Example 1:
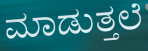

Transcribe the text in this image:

ಮಾಡುತ್ತಲೆ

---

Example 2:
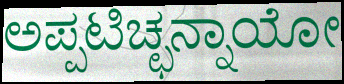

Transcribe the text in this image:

ಅಪ್ಪಟಿಚ್ಛನ್ನಾಯೋ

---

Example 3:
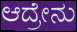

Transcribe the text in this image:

ಆದ್ರೇನು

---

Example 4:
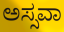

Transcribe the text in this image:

ಅಸ್ಸವಾ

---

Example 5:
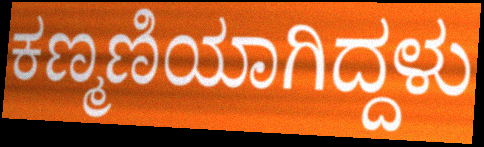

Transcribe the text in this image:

ಕಣ್ಮಣಿಯಾಗಿದ್ದಳು